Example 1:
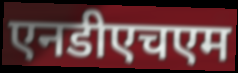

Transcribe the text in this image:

एनडीएचएम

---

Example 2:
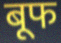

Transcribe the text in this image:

बूफ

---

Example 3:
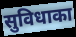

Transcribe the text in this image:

सुविधाका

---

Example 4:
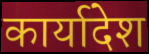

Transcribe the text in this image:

कार्यादेश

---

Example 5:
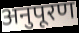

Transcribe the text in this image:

अनुपूरण